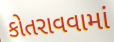
કોતરાવવામાં